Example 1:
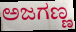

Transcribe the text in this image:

ಅಜಗಣ್ಣ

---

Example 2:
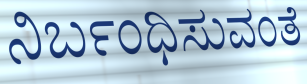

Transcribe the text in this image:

ನಿರ್ಬಂಧಿಸುವಂತೆ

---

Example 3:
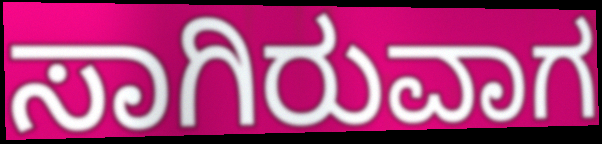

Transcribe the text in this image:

ಸಾಗಿರುವಾಗ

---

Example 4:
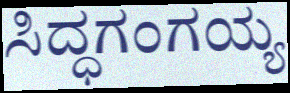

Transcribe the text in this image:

ಸಿದ್ಧಗಂಗಯ್ಯ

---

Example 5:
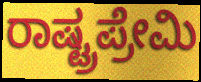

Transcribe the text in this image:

ರಾಷ್ಟ್ರಪ್ರೇಮಿ